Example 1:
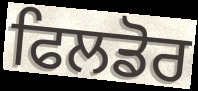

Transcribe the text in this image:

ਫਿਲਡੋਰ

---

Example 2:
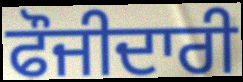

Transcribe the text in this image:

ਫੌਜੀਦਾਰੀ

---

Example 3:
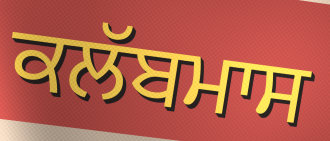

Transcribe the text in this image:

ਕਲੱਬਮਾਸ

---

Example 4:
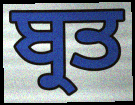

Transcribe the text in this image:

ਬ੍ਰਤ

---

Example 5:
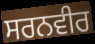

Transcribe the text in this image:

ਸਰਨਵੀਰ